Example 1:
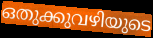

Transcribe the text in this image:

ഒതുക്കുവഴിയുടെ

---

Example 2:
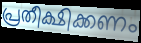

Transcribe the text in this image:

പ്രതീക്ഷിക്കണം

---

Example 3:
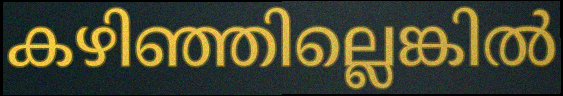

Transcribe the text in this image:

കഴിഞ്ഞില്ലെങ്കിൽ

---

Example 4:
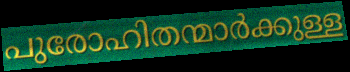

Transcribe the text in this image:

പുരോഹിതന്മാർക്കുള്ള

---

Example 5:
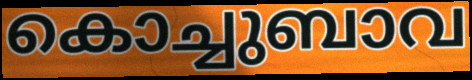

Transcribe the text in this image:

കൊച്ചുബാവ